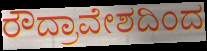
ರೌದ್ರಾವೇಶದಿಂದ